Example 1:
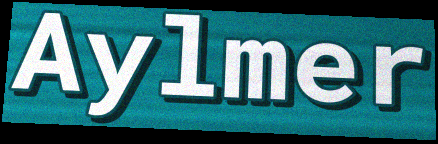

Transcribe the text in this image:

Aylmer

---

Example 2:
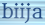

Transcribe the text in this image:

biija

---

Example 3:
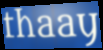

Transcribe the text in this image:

thaay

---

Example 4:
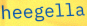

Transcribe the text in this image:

heegella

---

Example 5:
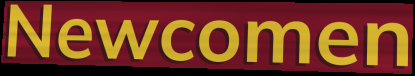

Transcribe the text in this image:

Newcomen